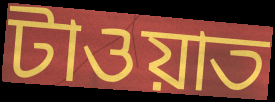
টাওয়াত